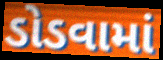
ડોડવામાં